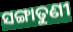
ସଙ୍ଗାତୁଣୀ